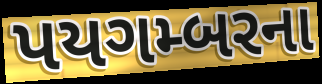
પયગમ્બરના